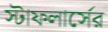
স্টাফলার্সের